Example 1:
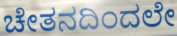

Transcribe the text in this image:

ಚೇತನದಿಂದಲೇ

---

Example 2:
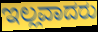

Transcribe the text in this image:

ಇಲ್ಲವಾದರು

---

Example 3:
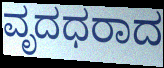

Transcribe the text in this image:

ವೃದಧರಾದ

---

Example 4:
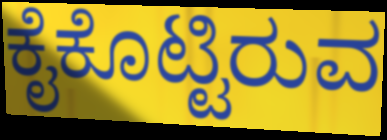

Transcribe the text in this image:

ಕೈಕೊಟ್ಟಿರುವ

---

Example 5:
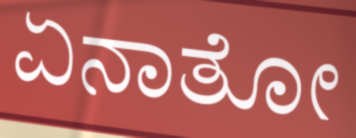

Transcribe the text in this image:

ಏನಾತೋ